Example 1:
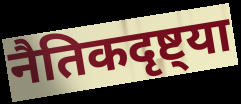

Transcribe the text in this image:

नैतिकदृष्ट्या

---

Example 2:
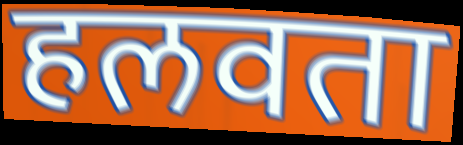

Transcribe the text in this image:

हलवता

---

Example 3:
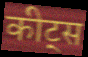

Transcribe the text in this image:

कीट्‌स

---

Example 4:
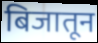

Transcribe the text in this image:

बिजातून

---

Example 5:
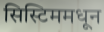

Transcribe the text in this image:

सिस्टिममधून